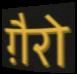
ग़ैरो